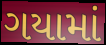
ગયામાં